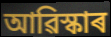
আৱিস্কাৰ